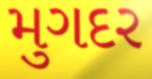
મુગદર